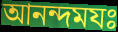
আনন্দমযঃ